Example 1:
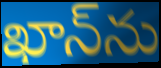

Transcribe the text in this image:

ఖాన్‌ను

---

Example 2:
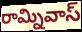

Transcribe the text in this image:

రామ్నివాస్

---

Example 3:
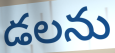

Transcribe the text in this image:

డలను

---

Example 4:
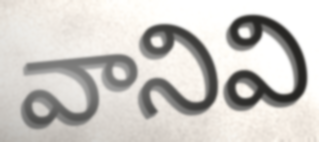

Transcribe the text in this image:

వానివి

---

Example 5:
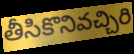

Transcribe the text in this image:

తీసికొనివచ్చిరి